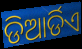
ଡିଆର୍ଡିଏ